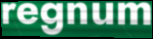
regnum